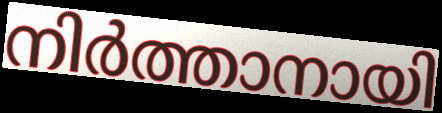
നിർത്താനായി